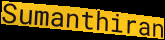
Sumanthiran